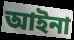
আইনা